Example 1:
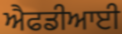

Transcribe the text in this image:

ਐਫਡੀਆਈ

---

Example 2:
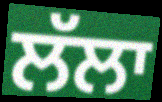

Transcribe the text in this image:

ਲੱਲਾ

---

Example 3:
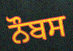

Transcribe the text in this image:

ਨੌਬਸ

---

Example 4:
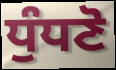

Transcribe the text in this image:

ਧੁੰਧਣੋ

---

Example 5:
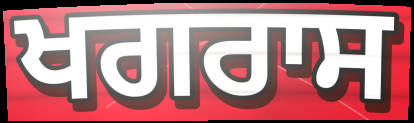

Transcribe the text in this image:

ਖਗਰਾਸ